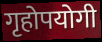
गृहोपयोगी